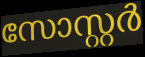
സോസ്റ്റർ